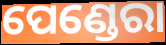
ପେଣ୍ଡେରା